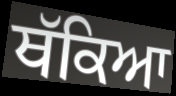
ਥੱਕਿਆ